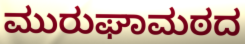
ಮುರುಘಾಮಠದ